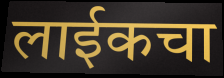
लाईकचा